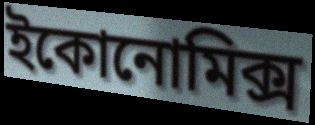
ইকোনোমিক্স